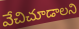
వేచిచూడాలని